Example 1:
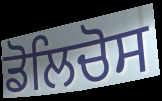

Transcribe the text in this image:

ਡੋਲਿਚੋਸ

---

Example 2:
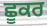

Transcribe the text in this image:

ਛੂਕਰ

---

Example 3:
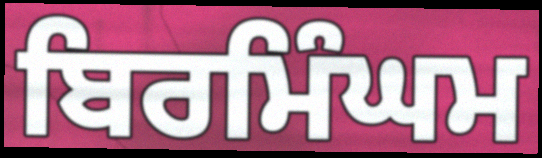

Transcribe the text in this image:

ਬਿਰਮਿੰਘਮ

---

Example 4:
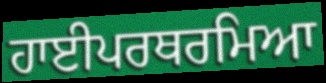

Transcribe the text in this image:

ਹਾਈਪਰਥਰਮਿਆ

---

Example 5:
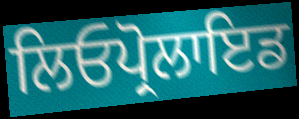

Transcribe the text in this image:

ਲਿਓਪ੍ਰੋਲਾਇਡ